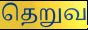
தெறுவ